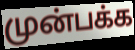
முன்பக்க